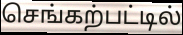
செங்கற்பட்டில்